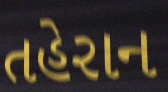
તહેરાન